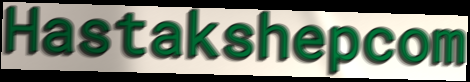
Hastakshepcom